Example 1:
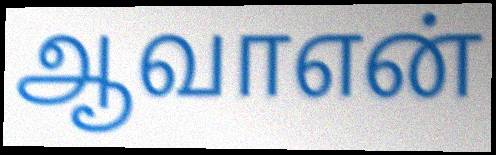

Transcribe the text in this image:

ஆவாஎன்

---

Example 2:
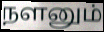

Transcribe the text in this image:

நளனும்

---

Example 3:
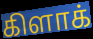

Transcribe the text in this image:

கிளாக்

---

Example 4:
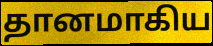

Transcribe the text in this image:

தானமாகிய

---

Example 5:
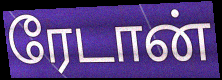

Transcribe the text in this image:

ரேடான்